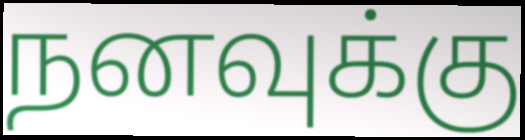
நனவுக்கு